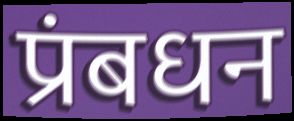
प्रंबधन